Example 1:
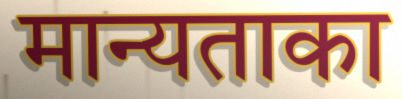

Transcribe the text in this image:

मान्यताका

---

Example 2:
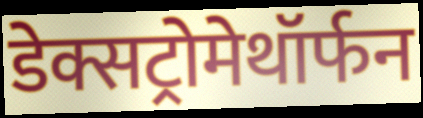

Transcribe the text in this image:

डेक्सट्रोमेथॉर्फन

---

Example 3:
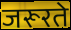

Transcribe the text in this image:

जरूरते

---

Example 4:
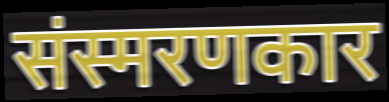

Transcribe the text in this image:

संस्मरणकार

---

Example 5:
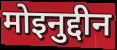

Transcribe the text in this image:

मोइनुद्दीन